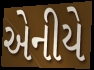
એનીયે